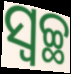
ସ୍ୱଚ୍ଛ